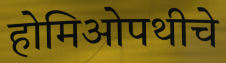
होमिओपथीचे